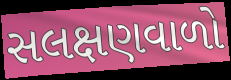
સલક્ષણવાળો